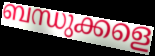
ബന്ധുക്കളെ